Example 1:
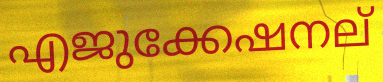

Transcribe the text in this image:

എജുക്കേഷനല്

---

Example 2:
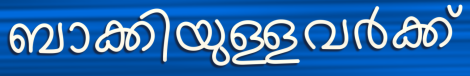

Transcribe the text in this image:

ബാക്കിയുള്ളവർക്ക്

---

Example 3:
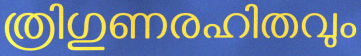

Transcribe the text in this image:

ത്രിഗുണരഹിതവും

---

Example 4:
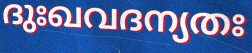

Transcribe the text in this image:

ദുഃഖവദന്യതഃ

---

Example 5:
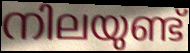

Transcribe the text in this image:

നിലയുണ്ട്